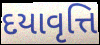
દયાવૃત્તિ